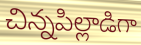
చిన్నపిల్లాడిగా